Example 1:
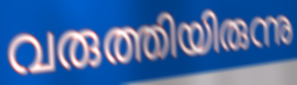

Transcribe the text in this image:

വരുത്തിയിരുന്നു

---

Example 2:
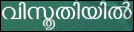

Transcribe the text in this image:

വിസ്തൃതിയിൽ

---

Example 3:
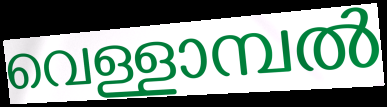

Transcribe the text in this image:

വെള്ളാമ്പൽ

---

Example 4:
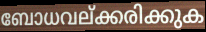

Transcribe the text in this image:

ബോധവല്ക്കരിക്കുക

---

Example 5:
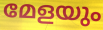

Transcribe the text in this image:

മേളയും